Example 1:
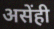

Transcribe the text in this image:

असेंही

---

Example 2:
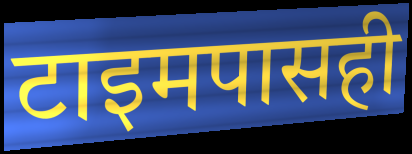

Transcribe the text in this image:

टाइमपासही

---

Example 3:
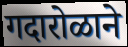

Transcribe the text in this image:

गदारोळाने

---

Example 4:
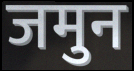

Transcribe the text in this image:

जमुन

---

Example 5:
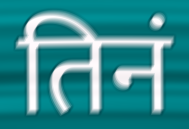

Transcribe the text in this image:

तिनं